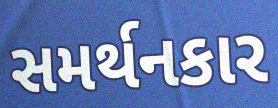
સમર્થનકાર